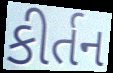
કીર્તન